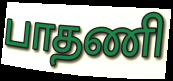
பாதணி